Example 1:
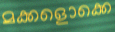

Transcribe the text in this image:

മക്കളൊക്കെ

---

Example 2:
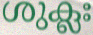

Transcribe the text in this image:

ശുക്ലഃ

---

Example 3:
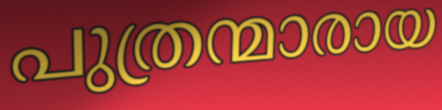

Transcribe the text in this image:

പുത്രന്മാരായ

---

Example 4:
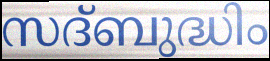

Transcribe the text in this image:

സദ്ബുദ്ധിം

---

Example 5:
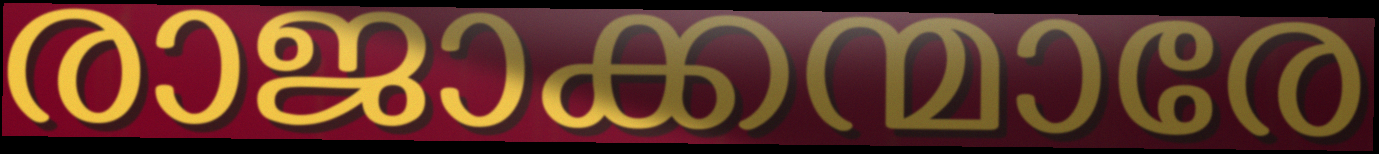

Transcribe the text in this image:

രാജാക്കന്മാരേ